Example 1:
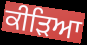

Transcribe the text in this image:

ਕੀੜਿਆ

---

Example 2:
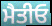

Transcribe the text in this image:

ਮੈਤੀਓ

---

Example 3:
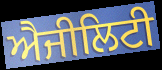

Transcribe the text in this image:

ਐਜੀਲਿਟੀ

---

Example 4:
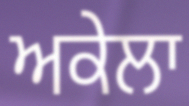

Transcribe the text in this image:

ਅਕੇਲਾ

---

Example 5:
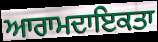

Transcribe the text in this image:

ਆਰਾਮਦਾਇਕਤਾ